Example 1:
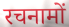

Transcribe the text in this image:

रचनामों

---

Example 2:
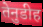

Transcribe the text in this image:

तेनुडीह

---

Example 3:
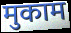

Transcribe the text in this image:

मुकाम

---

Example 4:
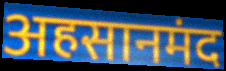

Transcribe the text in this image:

अहसानमंद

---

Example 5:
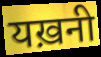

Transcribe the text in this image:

यख़नी